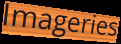
Imageries